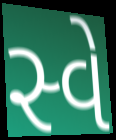
સ્વે